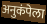
अनुकंपेला